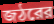
জঠরের